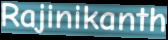
Rajinikanth